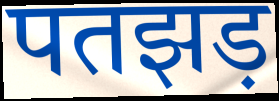
पतझड़